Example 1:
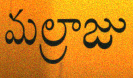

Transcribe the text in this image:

మల్రాజు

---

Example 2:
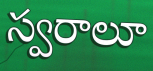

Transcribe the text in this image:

స్వరాలూ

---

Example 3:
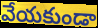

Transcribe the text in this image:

వేయకుండా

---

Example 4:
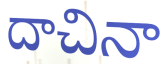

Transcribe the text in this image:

దాచినా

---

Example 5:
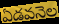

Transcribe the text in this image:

ఏడవనెల